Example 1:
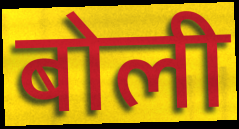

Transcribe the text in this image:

बोली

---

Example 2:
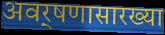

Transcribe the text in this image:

अवर्षणासारख्या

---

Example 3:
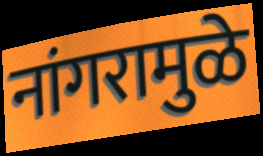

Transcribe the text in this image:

नांगरामुळे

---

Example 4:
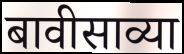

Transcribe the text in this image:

बावीसाव्या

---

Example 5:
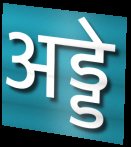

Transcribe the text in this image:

अड्डे